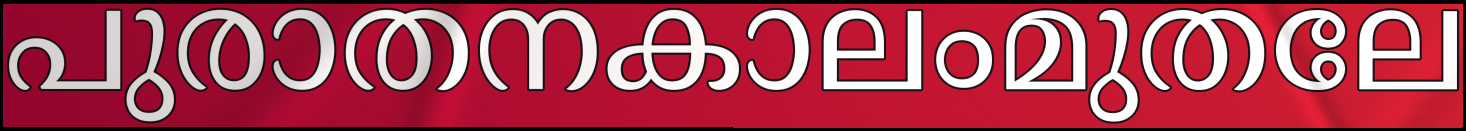
പുരാതനകാലംമുതലേ